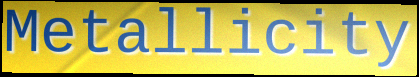
Metallicity